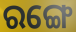
ରଙ୍ଗେ